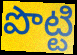
పొట్టి